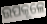
ଉପକୂଳେ